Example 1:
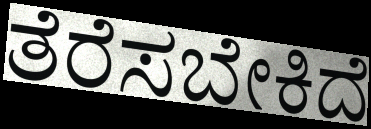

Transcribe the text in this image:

ತೆರೆಸಬೇಕಿದೆ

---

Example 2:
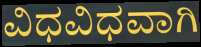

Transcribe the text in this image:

ವಿಧವಿಧವಾಗಿ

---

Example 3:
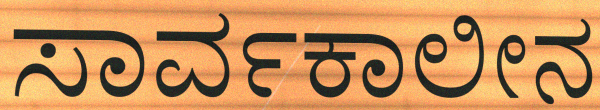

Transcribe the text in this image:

ಸಾರ್ವಕಾಲೀನ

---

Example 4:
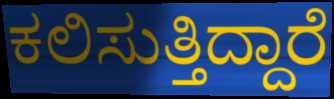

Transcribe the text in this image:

ಕಲಿಸುತ್ತಿದ್ದಾರೆ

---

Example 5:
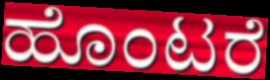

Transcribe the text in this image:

ಹೊಂಟರೆ